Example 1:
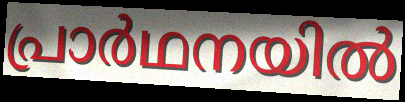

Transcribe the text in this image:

പ്രാർഥനയിൽ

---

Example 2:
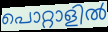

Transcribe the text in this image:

പൊറ്റാളിൽ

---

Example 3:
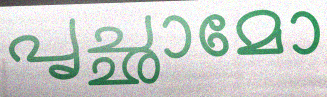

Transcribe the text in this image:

പൃച്ഛാമോ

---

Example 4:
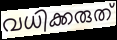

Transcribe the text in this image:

വധിക്കരുത്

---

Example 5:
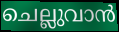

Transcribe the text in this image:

ചെല്ലുവാൻ